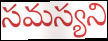
సమస్యని